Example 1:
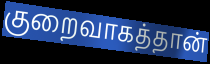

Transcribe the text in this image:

குறைவாகத்தான்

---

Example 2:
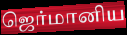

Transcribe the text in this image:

ஜெர்மானிய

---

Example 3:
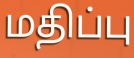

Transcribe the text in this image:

மதிப்பு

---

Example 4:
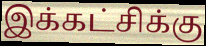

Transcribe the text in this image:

இக்கட்சிக்கு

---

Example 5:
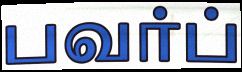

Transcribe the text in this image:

பவர்ப்